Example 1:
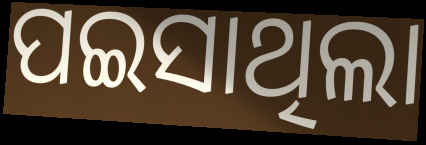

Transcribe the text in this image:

ପଇସାଥିଲା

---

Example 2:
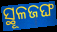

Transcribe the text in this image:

ସ୍ଥୂଳଜଙ୍ଘ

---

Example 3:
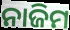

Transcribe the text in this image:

ନାଜିମ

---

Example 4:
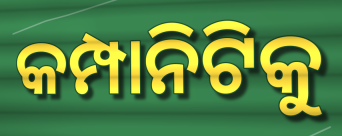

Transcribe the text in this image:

କମ୍ପାନିଟିକୁ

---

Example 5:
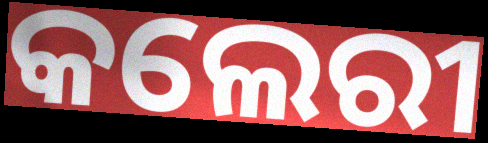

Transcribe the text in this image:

କଲେରୀ